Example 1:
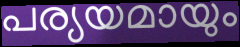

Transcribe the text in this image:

പര്യയമായും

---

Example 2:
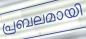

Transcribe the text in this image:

പ്രബലമായി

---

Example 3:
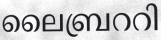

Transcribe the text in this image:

ലൈബ്രററി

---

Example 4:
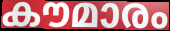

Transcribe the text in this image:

കൗമാരം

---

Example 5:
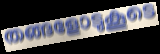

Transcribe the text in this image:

തങ്ങളോടുകൂടെ